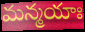
మన్మయాః